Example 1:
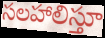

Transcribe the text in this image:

సలహాలిస్తూ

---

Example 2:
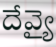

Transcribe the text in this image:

దేవ్యై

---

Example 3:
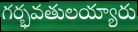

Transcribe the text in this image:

గర్భవతులయ్యారు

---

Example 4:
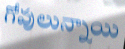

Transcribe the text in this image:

గోవులున్నాయి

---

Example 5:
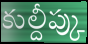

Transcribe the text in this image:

కుల్దీప్కు